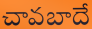
చావబాదే